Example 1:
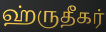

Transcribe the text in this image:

ஹ்ருதீகர்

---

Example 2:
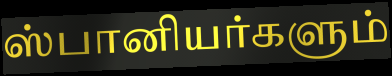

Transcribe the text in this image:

ஸ்பானியர்களும்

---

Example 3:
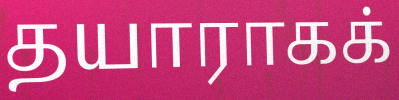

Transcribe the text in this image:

தயாராகக்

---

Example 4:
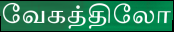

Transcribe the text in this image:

வேகத்திலோ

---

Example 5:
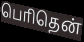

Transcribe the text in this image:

பெரிதென்